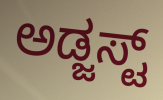
ಅಡ್ಜಸ್ಟ್